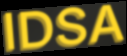
IDSA